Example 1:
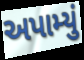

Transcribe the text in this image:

અપામ્યું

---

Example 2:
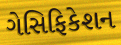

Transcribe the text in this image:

ગેસિફિકેશન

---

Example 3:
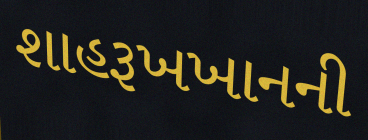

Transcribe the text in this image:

શાહરૂખખાનની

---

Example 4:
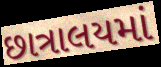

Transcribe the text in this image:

છાત્રાલયમાં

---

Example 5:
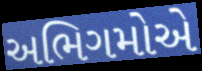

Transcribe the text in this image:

અભિગમોએ